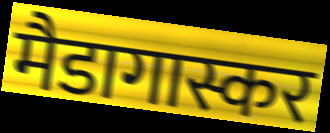
मैडागास्कर